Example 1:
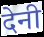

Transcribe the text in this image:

देनी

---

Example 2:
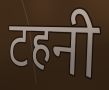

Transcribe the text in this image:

टहनी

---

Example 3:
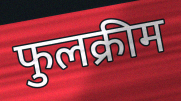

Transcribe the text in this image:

फुलक्रीम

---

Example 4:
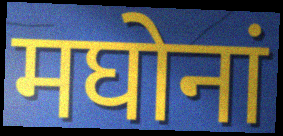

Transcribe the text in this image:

मघोनां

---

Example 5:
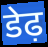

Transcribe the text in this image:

डेढ़